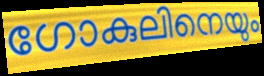
ഗോകുലിനെയും